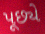
પૂછ્યે